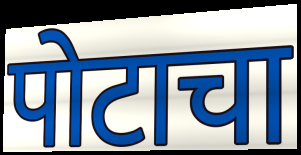
पोटाचा